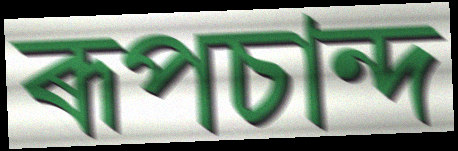
ৰূপচান্দ